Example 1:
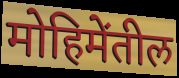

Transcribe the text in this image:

मोहिमेंतील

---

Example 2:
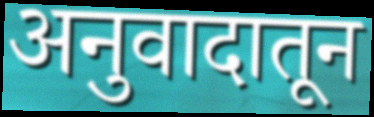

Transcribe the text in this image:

अनुवादातून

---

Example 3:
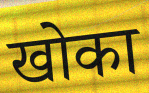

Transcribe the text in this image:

खोका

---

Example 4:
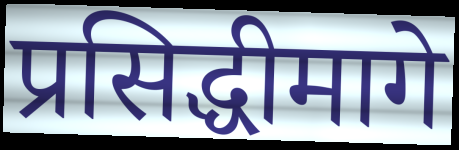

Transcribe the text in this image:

प्रसिद्धीमागे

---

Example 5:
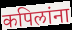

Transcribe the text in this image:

कपिलांना